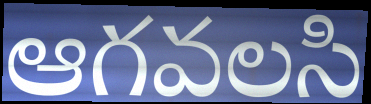
ఆగవలసి